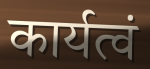
कार्यत्वं